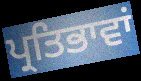
ਪ੍ਰਤਿਭਾਵਾਂ